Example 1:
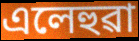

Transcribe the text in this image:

এলেহুৱা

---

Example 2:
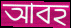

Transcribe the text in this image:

আবহ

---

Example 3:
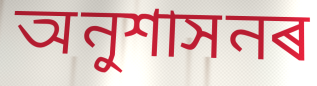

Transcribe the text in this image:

অনুশাসনৰ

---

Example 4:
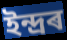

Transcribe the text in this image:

ইন্দ্ৰৰ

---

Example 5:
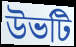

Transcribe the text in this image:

উভটি